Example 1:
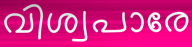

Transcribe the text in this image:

വിശ്വപാരേ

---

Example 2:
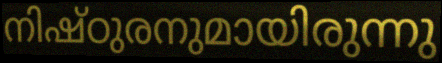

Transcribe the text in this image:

നിഷ്ഠുരനുമായിരുന്നു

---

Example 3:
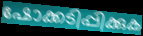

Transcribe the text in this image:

ഷോക്കടിപ്പിക്കുക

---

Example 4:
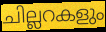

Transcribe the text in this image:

ചില്ലറകളും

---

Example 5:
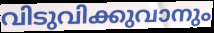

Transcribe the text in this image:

വിടുവിക്കുവാനും